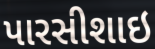
પારસીશાઇ